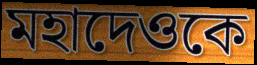
মহাদেওকে